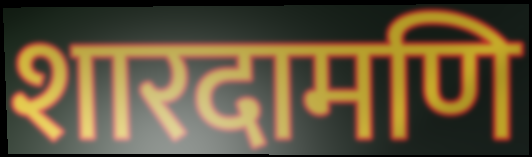
शारदामणि